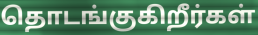
தொடங்குகிறீர்கள்